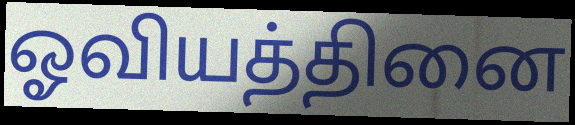
ஓவியத்தினை